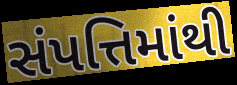
સંપત્તિમાંથી